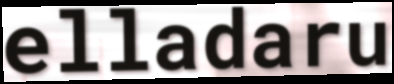
elladaru